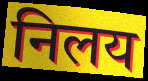
निलय